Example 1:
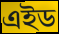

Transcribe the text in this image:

এইড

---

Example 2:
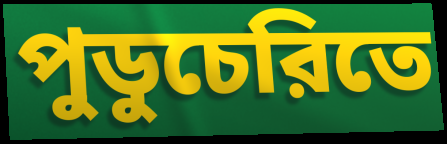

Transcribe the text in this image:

পুডুচেরিতে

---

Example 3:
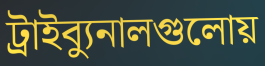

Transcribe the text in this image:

ট্রাইব্যুনালগুলোয়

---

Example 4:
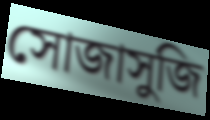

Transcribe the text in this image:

সোজাসুজি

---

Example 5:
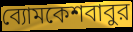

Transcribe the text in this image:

ব্যোমকেশবাবুর